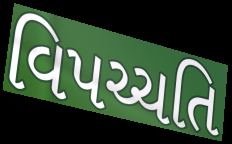
વિપચ્ચતિ